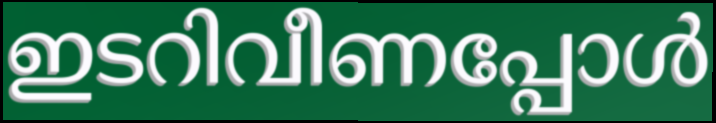
ഇടറിവീണപ്പോൾ